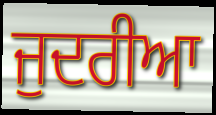
ਜੁਦਰੀਆ